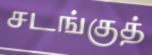
சடங்குத்